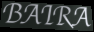
BAIRA